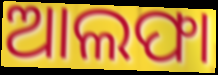
ଆଲଫା